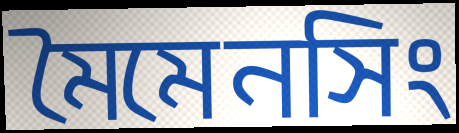
মৈমেনসিং